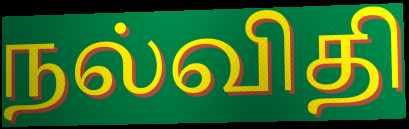
நல்விதி